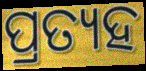
ପ୍ରତ୍ଯହ